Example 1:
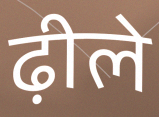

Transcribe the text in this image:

ढ़ीले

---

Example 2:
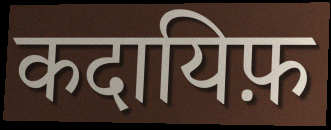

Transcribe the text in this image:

कदायिफ़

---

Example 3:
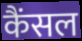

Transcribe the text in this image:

कैंसल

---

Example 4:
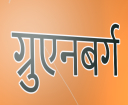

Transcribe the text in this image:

ग्रुएनबर्ग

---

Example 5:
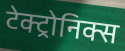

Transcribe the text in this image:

टेक्ट्रोनिक्स